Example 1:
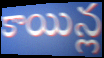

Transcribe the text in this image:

కాయిన్ల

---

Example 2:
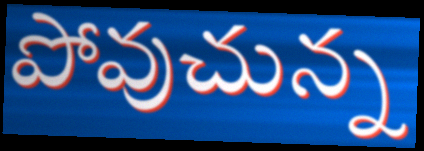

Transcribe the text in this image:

పోవుచున్న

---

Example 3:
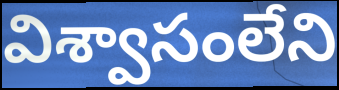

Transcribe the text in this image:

విశ్వాసంలేని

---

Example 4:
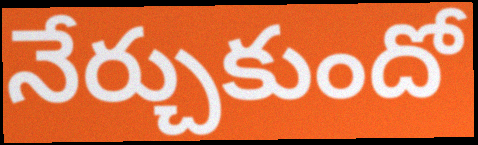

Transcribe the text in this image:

నేర్చుకుందో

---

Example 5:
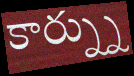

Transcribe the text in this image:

కార్న్ను